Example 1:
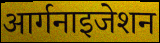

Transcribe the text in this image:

आर्गनाइजेशन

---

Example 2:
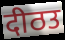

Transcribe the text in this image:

दीठउ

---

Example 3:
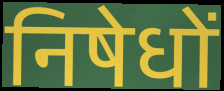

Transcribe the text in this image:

निषेधों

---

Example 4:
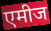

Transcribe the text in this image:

एमीज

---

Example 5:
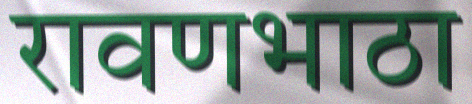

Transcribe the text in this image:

रावणभाठा